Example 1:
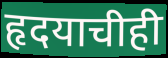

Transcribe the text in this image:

हृदयाचीही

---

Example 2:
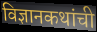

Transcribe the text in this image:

विज्ञानकथांची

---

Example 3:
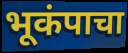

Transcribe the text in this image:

भूकंपाचा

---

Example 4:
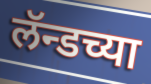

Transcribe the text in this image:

लॅन्डच्या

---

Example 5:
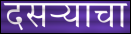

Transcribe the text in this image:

दसऱ्याचा